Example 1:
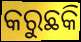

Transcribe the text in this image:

କରୁଛକି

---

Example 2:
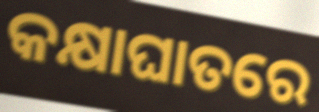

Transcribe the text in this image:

କକ୍ଷାଘାତରେ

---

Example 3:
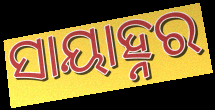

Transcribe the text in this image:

ସାୟାହ୍ନର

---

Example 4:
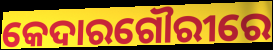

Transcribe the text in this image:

କେଦାରଗୌରୀରେ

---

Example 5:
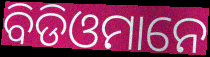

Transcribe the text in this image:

ବିଡିଓମାନେ